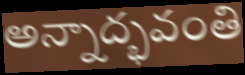
అన్నాద్భవంతి